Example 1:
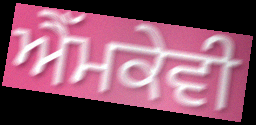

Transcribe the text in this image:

ਐੱਮਕੇਵੀ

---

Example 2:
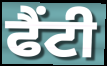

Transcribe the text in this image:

ਫੈਂਟੀ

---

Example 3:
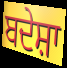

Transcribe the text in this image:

ਬਦੇਸ਼ਾ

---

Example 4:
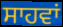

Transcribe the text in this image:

ਸਾਹਵਾਂ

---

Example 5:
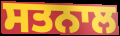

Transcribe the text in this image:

ਸਤਨਾਲ